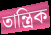
তান্ত্ৰিক